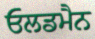
ਓਲਡਮੈਨ